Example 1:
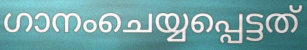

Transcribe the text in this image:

ഗാനംചെയ്യപ്പെട്ടത്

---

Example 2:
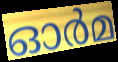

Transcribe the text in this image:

ഓർമ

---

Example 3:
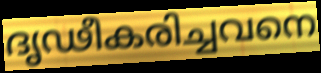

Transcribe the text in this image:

ദൃഢീകരിച്ചവനെ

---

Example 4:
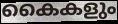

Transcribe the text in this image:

കൈകളും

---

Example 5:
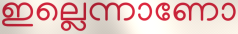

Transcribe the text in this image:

ഇല്ലെന്നാണോ